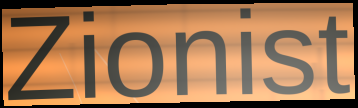
Zionist